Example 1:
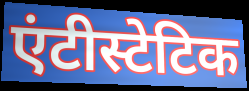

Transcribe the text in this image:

एंटीस्टेटिक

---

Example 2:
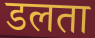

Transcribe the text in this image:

डलता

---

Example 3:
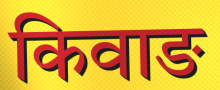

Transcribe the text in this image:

किवाङ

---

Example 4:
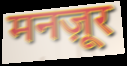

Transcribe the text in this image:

मनज़ूर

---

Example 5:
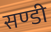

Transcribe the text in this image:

सण्डी